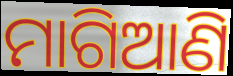
ମାଗିଆଣି